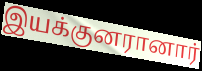
இயக்குனரானார்